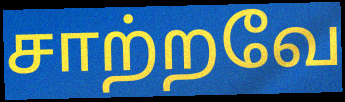
சாற்றவே